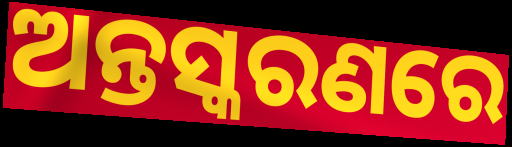
ଅନ୍ତସ୍କରଣରେ